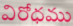
విరోధము